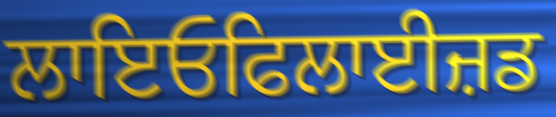
ਲਾਇਓਫਿਲਾਈਜ਼ਡ